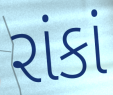
રાંકાં